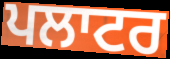
ਪਲਾਟਰ